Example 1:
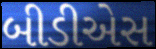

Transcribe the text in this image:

બીડીએસ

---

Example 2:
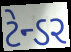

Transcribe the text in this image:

ટેન્ડર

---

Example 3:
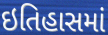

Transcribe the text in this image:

ઇતિહાસમાં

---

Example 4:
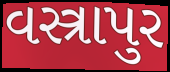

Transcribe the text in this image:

વસ્ત્રાપુર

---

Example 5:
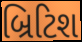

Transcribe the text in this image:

બ્રિટિશ